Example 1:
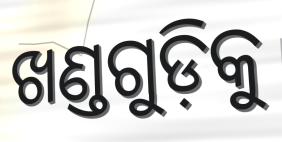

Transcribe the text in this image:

ଖଣ୍ଡଗୁଡ଼ିକୁ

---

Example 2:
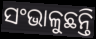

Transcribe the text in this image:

ସଂଭାଳୁଛନ୍ତି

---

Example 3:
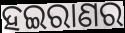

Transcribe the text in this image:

ହଇରାଣର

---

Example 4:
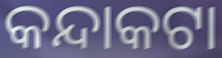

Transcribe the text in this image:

କନ୍ଦାକଟା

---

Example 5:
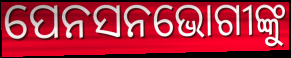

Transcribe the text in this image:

ପେନସନଭୋଗୀଙ୍କୁ